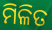
ମିଳିତ